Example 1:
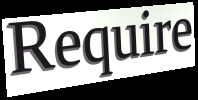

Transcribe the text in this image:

Require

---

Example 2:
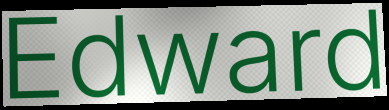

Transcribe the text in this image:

Edward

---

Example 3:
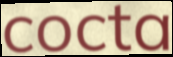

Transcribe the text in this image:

cocta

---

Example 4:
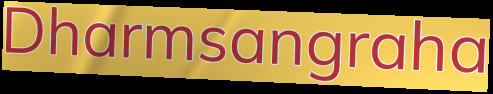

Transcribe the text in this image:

Dharmsangraha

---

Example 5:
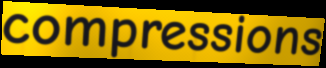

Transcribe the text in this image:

compressions